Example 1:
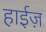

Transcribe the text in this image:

हाईज़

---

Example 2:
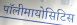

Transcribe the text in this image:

पॉलीमायोसिटिस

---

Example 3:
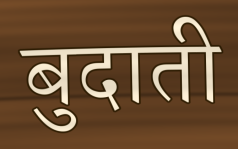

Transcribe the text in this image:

बुदाती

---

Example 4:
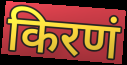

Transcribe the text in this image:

किरणं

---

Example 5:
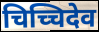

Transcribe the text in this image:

चिच्चिदेव